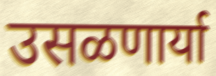
उसळणार्या